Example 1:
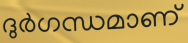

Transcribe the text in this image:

ദുർഗന്ധമാണ്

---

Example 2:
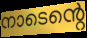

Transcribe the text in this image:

നാടെന്റെ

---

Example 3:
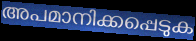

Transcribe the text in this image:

അപമാനിക്കപ്പെടുക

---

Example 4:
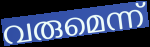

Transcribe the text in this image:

വരുമെന്ന്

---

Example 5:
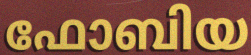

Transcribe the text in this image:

ഫോബിയ